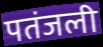
पतंजली